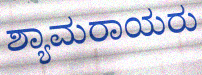
ಶ್ಯಾಮರಾಯರು